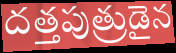
దత్తపుత్రుడైన